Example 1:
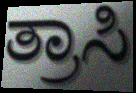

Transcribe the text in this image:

ತ್ರಾಸಿ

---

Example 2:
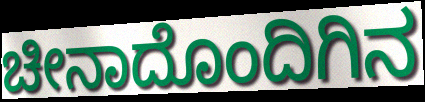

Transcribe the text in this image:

ಚೀನಾದೊಂದಿಗಿನ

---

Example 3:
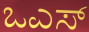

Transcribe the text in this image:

ಒಎಸ್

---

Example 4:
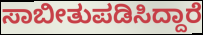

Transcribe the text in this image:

ಸಾಬೀತುಪಡಿಸಿದ್ದಾರೆ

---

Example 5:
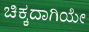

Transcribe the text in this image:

ಚಿಕ್ಕದಾಗಿಯೇ